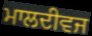
ਮਾਲਦੀਵਜ